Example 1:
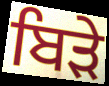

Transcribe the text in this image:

ਬਿੜੇ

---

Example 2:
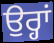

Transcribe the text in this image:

ਉਰ੍ਹਾਂ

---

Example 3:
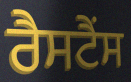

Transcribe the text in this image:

ਰੈਸਟੈਂਸ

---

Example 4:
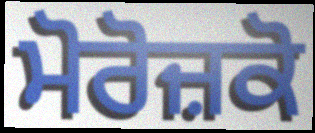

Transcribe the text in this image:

ਮੋਰੋਜ਼ਕੋ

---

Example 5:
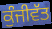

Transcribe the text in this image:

ਕੁੰਜੀਵੱਤ